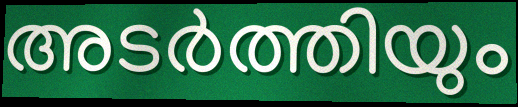
അടർത്തിയും